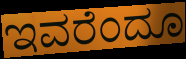
ಇವರೆಂದೂ